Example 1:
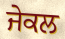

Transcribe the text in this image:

ਜੇਕਲ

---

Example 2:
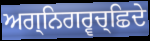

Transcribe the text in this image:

ਅਗ੍ਨਿਗਰ੍ਵਚ੍ਛਿਦੇ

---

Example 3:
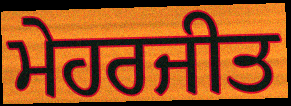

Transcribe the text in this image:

ਮੇਹਰਜੀਤ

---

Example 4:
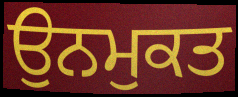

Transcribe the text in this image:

ਉਨਮੁਕਤ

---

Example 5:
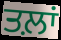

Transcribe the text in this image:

ਤਲ਼ਾਂ